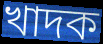
খাদক